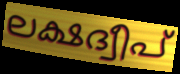
ലക്ഷദ്വീപ്